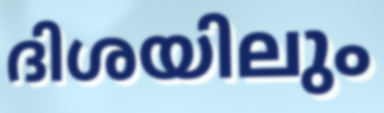
ദിശയിലും